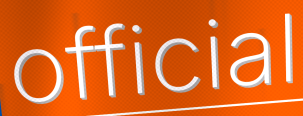
official